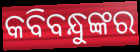
କବିବନ୍ଧୁଙ୍କର